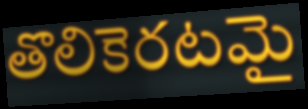
తొలికెరటమై